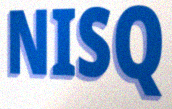
NISQ